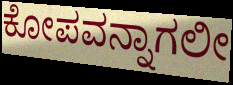
ಕೋಪವನ್ನಾಗಲೀ